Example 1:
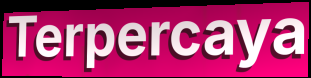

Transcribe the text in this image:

Terpercaya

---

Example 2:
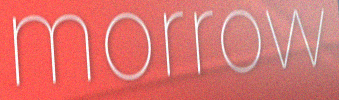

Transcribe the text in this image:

morrow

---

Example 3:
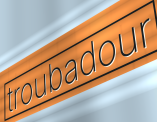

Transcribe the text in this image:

troubadour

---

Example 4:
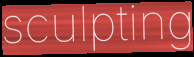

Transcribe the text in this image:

sculpting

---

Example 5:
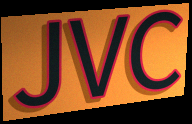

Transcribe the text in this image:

JVC